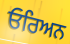
ਓਰਿਅਨ